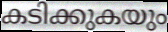
കടിക്കുകയും